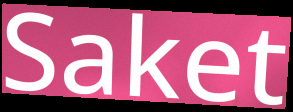
Saket